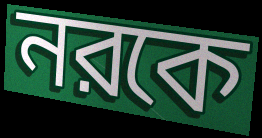
নরকে